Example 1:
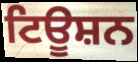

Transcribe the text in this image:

ਟਿਊਸ਼ਨ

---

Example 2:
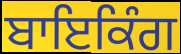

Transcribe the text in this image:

ਬਾਇਕਿੰਗ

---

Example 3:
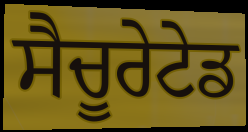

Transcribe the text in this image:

ਸੈਚੂਰੇਟੇਡ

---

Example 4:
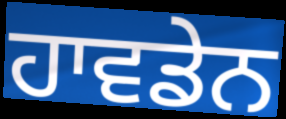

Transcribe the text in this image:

ਹਾਵਡੇਨ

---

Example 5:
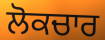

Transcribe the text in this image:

ਲੋਕਚਾਰ